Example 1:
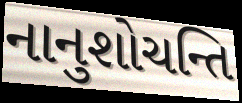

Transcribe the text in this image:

નાનુશોચન્તિ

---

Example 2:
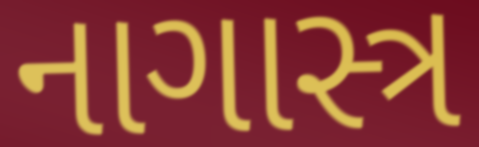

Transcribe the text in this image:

નાગાસ્ત્ર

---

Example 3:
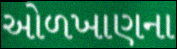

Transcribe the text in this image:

ઓળખાણના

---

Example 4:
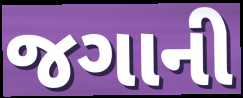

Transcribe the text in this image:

જગાની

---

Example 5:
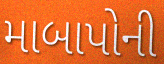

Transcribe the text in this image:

માબાપોની